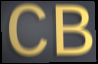
CB